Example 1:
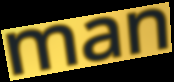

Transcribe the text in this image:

man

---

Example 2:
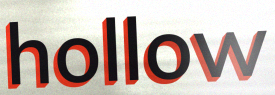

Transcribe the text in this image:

hollow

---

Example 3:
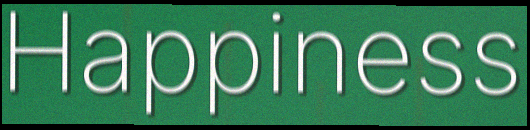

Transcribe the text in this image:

Happiness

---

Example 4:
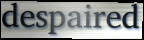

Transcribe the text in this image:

despaired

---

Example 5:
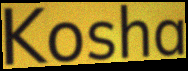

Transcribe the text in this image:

Kosha